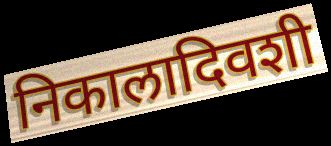
निकालादिवशी